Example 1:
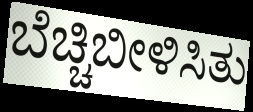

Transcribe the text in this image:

ಬೆಚ್ಚಿಬೀಳಿಸಿತು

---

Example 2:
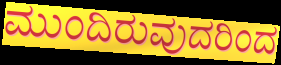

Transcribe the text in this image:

ಮುಂದಿರುವುದರಿಂದ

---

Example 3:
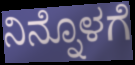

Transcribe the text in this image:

ನಿನ್ನೊಳಗೆ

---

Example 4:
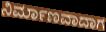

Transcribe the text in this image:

ನಿರ್ಮಾಣವಾದಾಗ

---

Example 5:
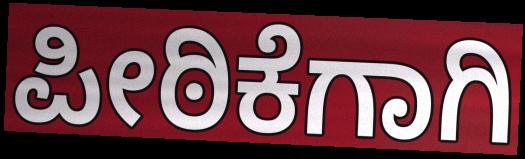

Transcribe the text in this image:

ಪೀಠಿಕೆಗಾಗಿ